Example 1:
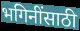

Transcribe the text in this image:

भगिनींसाठी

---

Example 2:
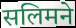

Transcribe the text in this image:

सलिमने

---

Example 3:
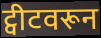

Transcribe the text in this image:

ट्वीटवरून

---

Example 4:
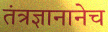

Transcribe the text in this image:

तंत्रज्ञानानेच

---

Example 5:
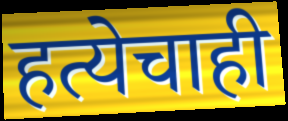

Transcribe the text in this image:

हत्येचाही